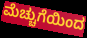
ಮೆಚ್ಚುಗೆಯಿಂದ